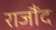
राजौंद